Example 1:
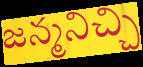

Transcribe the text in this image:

జన్మనిచ్చి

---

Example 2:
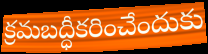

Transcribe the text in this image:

క్రమబద్ధీకరించేందుకు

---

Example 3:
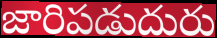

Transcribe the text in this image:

జారిపడుదురు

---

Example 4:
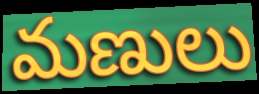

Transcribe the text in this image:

మణులు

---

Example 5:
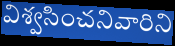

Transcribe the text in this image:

విశ్వసించనివారిని